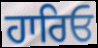
ਹਾਰਿਓ